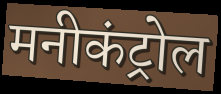
मनीकंट्रोल